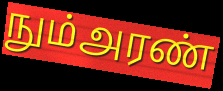
நும்அரண்